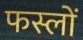
फस्लों